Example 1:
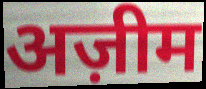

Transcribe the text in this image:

अज़ीम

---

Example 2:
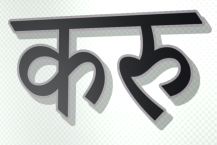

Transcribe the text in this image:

करु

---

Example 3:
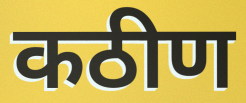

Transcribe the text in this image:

कठीण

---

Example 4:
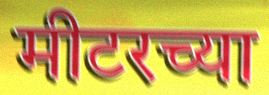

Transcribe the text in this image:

मीटरच्या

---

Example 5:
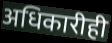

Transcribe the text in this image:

अधिकारीही